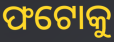
ଫଟୋକୁ